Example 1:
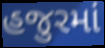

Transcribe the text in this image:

હજુરમાં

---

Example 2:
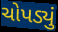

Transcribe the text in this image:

ચોપડ્યું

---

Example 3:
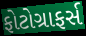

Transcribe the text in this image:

ફોટોગ્રાફર્સ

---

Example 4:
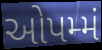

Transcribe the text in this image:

ઓપમ્મં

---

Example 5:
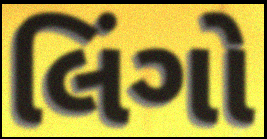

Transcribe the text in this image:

લિંગો